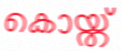
കൊയ്ത്